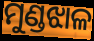
ମୁଣ୍ଡଝାଳ